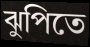
ঝুপিতে